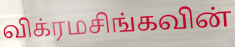
விக்ரமசிங்கவின்